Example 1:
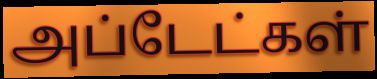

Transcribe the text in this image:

அப்டேட்கள்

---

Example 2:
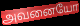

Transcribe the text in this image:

அவனையோ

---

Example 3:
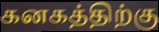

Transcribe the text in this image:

கனகத்திற்கு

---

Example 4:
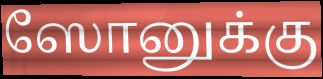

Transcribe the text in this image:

ஸோனுக்கு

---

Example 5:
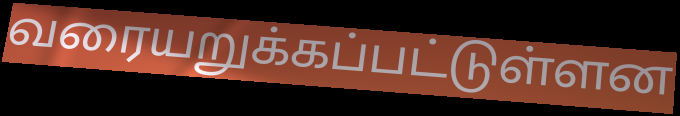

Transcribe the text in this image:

வரையறுக்கப்பட்டுள்ளன